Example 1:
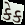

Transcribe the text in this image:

કેક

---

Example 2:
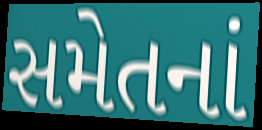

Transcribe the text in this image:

સમેતનાં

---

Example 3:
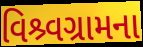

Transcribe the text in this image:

વિશ્ર્વગ્રામના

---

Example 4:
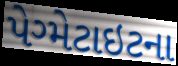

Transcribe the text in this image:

પેગ્મેટાઇટના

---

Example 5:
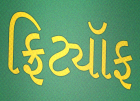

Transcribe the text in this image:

ફ્રિટ્યૉફ